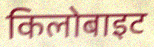
किलोबाइट